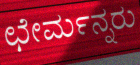
ಛೇರ್ಮನ್ನರು